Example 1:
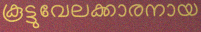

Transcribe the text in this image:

കൂട്ടുവേലക്കാരനായ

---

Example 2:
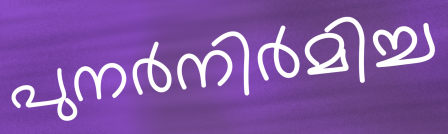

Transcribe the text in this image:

പുനർനിർമിച്ച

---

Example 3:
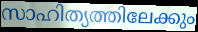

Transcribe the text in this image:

സാഹിത്യത്തിലേക്കും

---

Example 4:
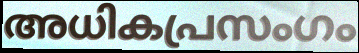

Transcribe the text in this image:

അധികപ്രസംഗം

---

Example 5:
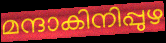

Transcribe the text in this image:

മന്ദാകിനിപ്പുഴ